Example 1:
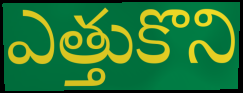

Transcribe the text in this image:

ఎత్తుకొని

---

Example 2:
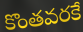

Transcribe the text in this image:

కొంతవరకే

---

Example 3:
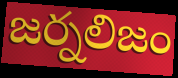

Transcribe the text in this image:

జర్నలిజం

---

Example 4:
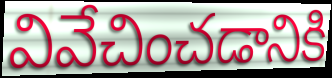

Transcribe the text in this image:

వివేచించడానికి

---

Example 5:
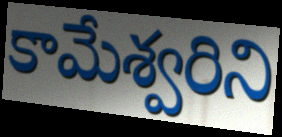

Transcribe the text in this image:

కామేశ్వరిని